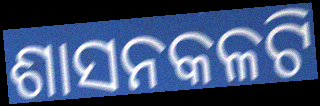
ଶାସନକଳଟି